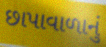
છાપાવાળાનું